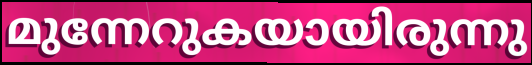
മുന്നേറുകയായിരുന്നു